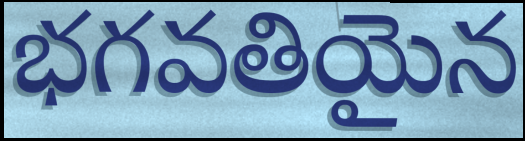
భగవతియైన